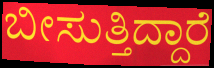
ಬೀಸುತ್ತಿದ್ದಾರೆ